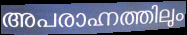
അപരാഹ്നത്തിലും